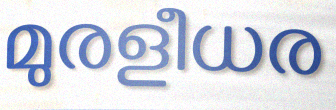
മുരളീധര